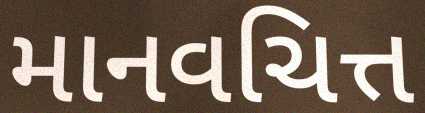
માનવચિત્ત